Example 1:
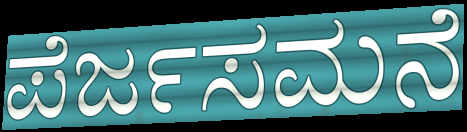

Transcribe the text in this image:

ಪೆರ್ಜಸಮನೆ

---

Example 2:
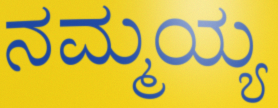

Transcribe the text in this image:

ನಮ್ಮಯ್ಯ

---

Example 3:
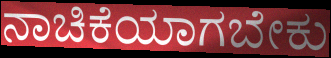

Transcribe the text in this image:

ನಾಚಿಕೆಯಾಗಬೇಕು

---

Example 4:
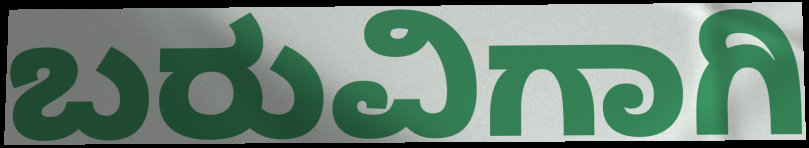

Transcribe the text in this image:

ಬರುವಿಗಾಗಿ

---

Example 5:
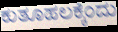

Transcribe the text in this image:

ಕುತೂಹಲಕ್ಕೆಂದು